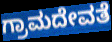
ಗ್ರಾಮದೇವತೆ